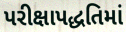
પરીક્ષાપદ્ધતિમાં